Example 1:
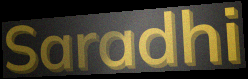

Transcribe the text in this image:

Saradhi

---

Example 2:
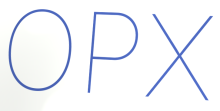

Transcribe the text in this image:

OPX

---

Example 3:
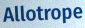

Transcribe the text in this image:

Allotrope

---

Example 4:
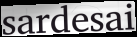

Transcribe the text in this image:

sardesai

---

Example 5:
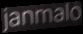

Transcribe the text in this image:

janmalo